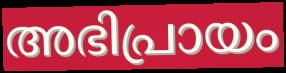
അഭിപ്രായം